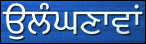
ਉਲੰਘਣਾਵਾਂ